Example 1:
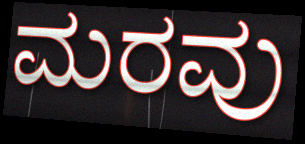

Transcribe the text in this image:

ಮರವು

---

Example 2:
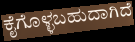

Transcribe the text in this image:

ಕೈಗೊಳ್ಳಬಹುದಾಗಿದೆ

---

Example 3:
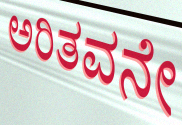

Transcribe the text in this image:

ಅರಿತವನೇ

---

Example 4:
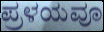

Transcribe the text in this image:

ಪ್ರಳಯವೂ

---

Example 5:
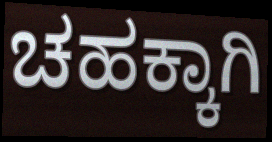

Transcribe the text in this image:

ಚಹಕ್ಕಾಗಿ